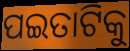
ପଇତାଟିକୁ